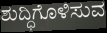
ಶುದ್ಧಿಗೊಳಿಸುವ